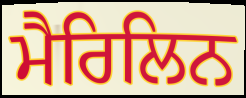
ਮੈਰਿਲਿਨ